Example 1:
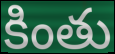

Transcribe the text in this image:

కింతు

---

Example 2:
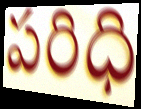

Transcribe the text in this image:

పరిధి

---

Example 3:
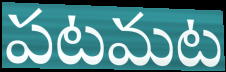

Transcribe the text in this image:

పటమట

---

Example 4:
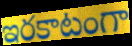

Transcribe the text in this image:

ఇరకాటంగా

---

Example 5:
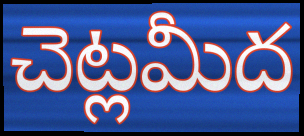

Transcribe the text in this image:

చెట్లమీద